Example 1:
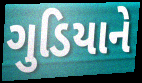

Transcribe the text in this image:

ગુડિયાને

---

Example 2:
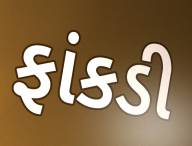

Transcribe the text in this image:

ફાંકડી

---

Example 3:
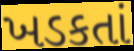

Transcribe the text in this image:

ખડકતાં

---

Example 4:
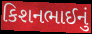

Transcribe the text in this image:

કિશનભાઈનું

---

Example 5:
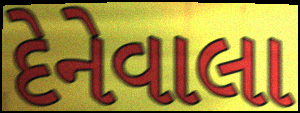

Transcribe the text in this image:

દેનેવાલા